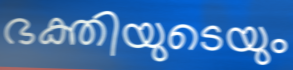
ഭക്തിയുടെയും